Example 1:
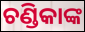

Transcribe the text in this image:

ଚଣ୍ଡିକାଙ୍କ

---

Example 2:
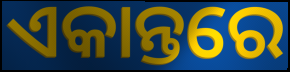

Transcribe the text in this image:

ଏକାନ୍ତରେ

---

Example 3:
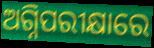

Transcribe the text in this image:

ଅଗ୍ନିପରୀକ୍ଷାରେ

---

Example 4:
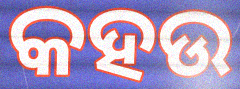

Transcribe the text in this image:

କହଉ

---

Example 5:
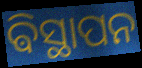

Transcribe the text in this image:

ଵିସ୍ଥାପନ